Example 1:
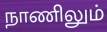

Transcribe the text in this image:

நாணிலும்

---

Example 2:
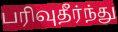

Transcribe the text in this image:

பரிவுதீர்ந்து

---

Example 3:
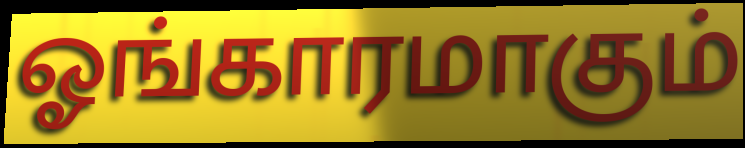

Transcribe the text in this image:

ஓங்காரமாகும்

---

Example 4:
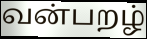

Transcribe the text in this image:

வன்பறழ்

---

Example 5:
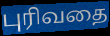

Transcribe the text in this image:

புரிவதை